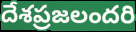
దేశప్రజలందరి